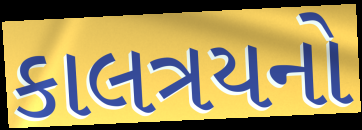
કાલત્રયનો